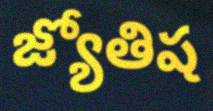
జ్యోతిష